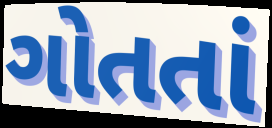
ગોતતાં